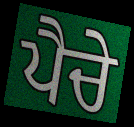
ਪੈਚੇ